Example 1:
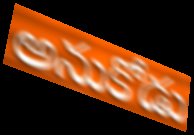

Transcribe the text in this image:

అనుకోడు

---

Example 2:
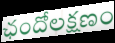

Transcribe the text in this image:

ఛందోలక్షణం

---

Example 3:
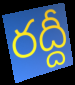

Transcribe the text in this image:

రద్దీ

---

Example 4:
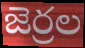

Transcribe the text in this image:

జెర్రల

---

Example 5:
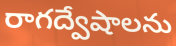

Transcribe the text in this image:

రాగద్వేషాలను